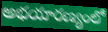
అభయారణ్యంలో